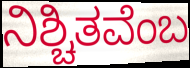
ನಿಶ್ಚಿತವೆಂಬ